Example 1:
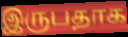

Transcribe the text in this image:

இருபதாக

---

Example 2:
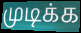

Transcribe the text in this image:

முடிக்க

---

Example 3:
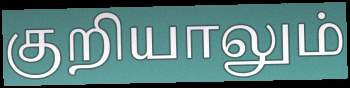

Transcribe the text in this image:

குறியாலும்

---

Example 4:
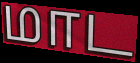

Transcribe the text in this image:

மாட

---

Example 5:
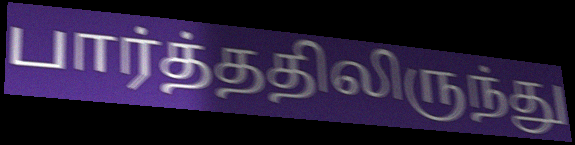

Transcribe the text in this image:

பார்த்ததிலிருந்து